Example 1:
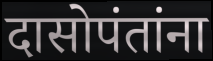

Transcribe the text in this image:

दासोपंतांना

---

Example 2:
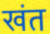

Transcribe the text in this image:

खंत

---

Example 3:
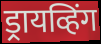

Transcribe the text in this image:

ड्रायव्हिंग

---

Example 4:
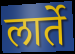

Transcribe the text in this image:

लार्ते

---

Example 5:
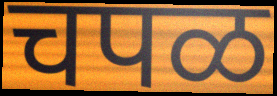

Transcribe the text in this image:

चपळ